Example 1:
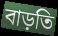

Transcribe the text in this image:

বাড়তি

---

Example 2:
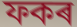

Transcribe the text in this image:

ফকৰ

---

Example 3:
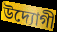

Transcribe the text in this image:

উদ্যোগী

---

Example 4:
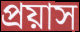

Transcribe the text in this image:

প্ৰয়াস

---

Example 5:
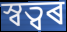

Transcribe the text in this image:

স্বত্বৰ